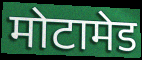
मोटामेड